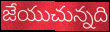
జేయుచున్నది